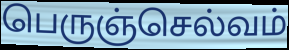
பெருஞ்செல்வம்